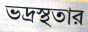
ভদ্রস্থতার